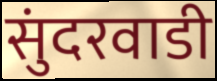
सुंदरवाडी